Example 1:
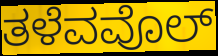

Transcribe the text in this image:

ತಳೆವವೊಲ್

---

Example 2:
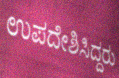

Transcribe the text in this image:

ಉಪದೇಶಿಸಿದ್ದರು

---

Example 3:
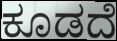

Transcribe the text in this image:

ಕೂಡದೆ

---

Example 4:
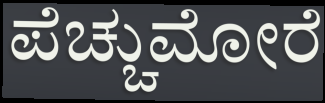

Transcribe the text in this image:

ಪೆಚ್ಚುಮೋರೆ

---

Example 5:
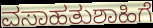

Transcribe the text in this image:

ವಸಾಹತುಶಾಹಿಗೆ